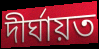
দীর্ঘায়ত